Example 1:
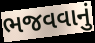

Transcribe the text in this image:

ભજવવાનું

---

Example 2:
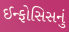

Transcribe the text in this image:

ઈન્ફોસિસનું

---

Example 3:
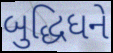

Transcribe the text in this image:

બુદ્ધિધને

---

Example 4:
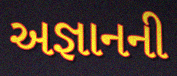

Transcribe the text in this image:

અજ્ઞાનની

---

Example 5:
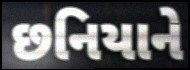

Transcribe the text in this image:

છનિયાને